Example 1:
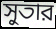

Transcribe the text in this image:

সুতার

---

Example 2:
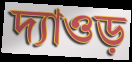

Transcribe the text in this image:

দ্যাওড়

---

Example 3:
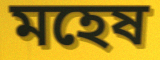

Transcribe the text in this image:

মহেষ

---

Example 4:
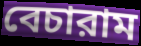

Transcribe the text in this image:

বেচারাম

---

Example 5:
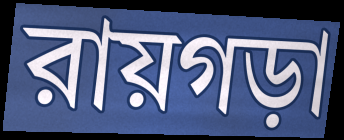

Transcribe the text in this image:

রায়গড়া